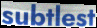
subtlest